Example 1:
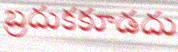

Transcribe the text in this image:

బ్రదుకకూడదు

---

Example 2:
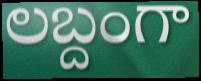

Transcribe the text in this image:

లబ్దంగా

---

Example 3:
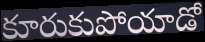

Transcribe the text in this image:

కూరుకుపోయాడో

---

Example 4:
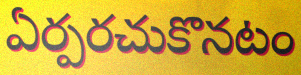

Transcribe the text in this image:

ఏర్పరచుకొనటం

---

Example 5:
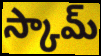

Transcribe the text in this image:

స్కామ్